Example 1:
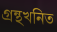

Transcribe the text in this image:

গ্ৰন্থখনিত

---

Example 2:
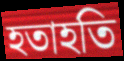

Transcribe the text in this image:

হতাহতি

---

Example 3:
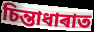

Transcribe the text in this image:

চিন্তাধাৰাত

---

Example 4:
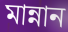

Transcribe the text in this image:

মান্নান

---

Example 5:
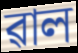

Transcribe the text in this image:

ৱাল